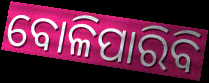
ବୋଳିପାରିବି